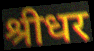
श्रीधर